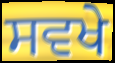
ਸਵਖੇ